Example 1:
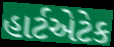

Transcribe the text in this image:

હાર્ટએટેક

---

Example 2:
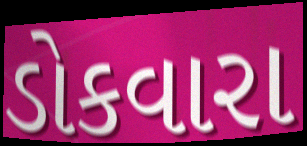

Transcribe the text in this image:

ડોકવારા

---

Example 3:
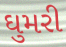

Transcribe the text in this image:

ઘુમરી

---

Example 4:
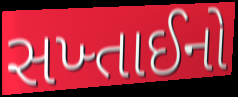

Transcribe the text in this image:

સખ્તાઈનો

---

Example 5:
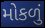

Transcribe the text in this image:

મોકળું